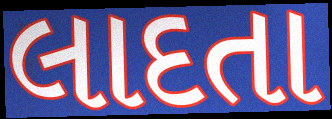
લાદતા